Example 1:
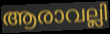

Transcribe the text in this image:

ആരാവല്ലി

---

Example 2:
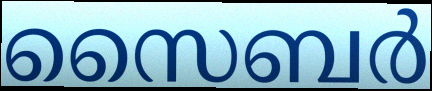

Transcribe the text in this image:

സൈബർ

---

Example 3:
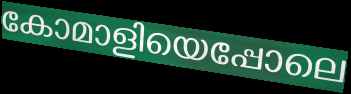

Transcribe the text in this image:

കോമാളിയെപ്പോലെ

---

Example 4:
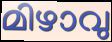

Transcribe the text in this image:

മിഴാവു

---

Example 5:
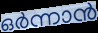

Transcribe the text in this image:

ഒർന്നാൻ